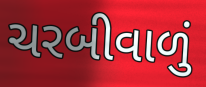
ચરબીવાળું